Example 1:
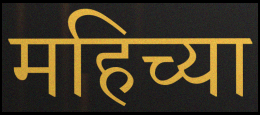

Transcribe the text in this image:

महिच्या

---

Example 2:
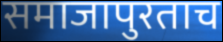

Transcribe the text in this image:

समाजापुरताच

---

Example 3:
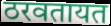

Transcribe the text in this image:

ठरवतायत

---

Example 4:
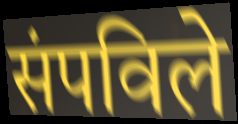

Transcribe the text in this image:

संपविले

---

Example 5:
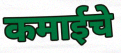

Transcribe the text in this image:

कमाईचे